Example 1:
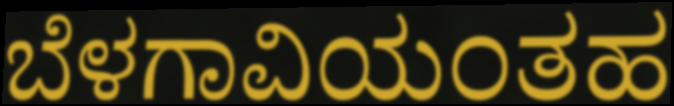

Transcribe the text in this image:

ಬೆಳಗಾವಿಯಂತಹ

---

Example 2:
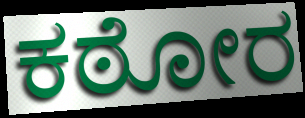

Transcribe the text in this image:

ಕಠೋರ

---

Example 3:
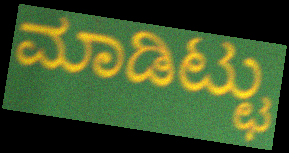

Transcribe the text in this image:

ಮಾಡಿಟ್ಟು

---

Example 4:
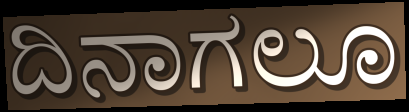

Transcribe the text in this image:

ದಿನಾಗಲೂ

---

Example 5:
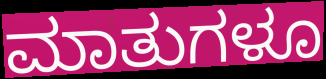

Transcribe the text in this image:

ಮಾತುಗಳೂ